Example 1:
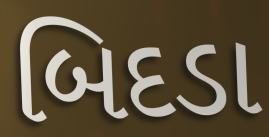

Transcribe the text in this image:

બિદડા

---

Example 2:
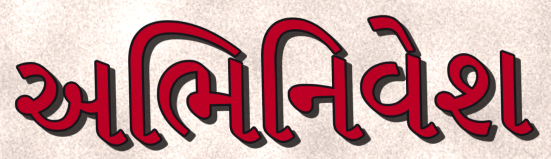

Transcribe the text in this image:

અભિનિવેશ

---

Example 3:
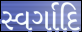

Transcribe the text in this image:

સ્વર્ગાદિ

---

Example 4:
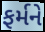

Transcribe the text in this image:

ફર્મને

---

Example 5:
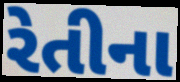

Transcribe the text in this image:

રેતીના